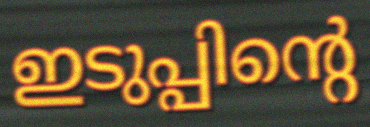
ഇടുപ്പിന്റെ